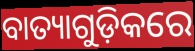
ବାତ୍ୟାଗୁଡ଼ିକରେ